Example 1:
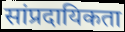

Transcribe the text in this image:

सांप्रदायिकता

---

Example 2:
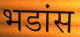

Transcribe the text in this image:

भडांस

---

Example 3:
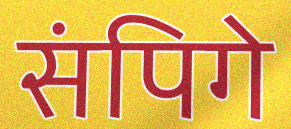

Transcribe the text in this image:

संपिगे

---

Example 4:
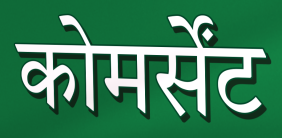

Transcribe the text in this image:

कोमर्सेंट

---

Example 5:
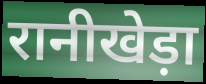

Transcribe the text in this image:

रानीखेड़ा